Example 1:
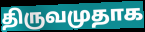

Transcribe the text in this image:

திருவமுதாக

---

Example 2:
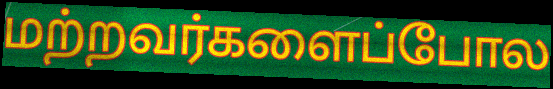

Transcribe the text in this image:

மற்றவர்களைப்போல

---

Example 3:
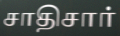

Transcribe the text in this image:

சாதிசார்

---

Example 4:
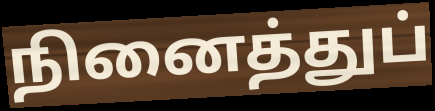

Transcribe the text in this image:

நினைத்துப்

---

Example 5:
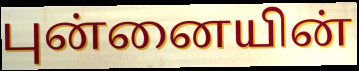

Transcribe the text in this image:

புன்னையின்